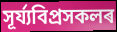
সূৰ্য্যবিপ্ৰসকলৰ